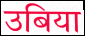
उबिया